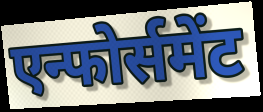
एन्फोर्समेंट